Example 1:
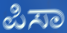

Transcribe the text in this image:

ಪಿಸಾ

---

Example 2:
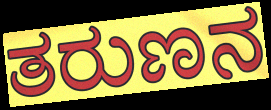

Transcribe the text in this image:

ತರುಣನ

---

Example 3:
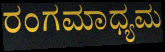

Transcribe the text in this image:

ರಂಗಮಾಧ್ಯಮ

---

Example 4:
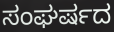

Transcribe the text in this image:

ಸಂಘರ್ಷದ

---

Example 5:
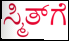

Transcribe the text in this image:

ಸ್ಮಿತ್‌ಗೆ